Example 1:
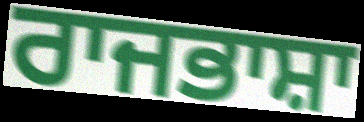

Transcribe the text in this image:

ਰਾਜਭਾਸ਼ਾ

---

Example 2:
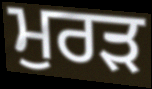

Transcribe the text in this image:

ਮੁਰੜ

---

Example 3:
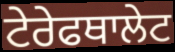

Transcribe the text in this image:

ਟੇਰੇਫਥਾਲੇਟ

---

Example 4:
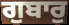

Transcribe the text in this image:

ਗੁਬਾਰੁ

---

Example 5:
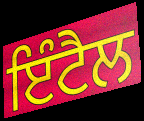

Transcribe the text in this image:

ਇੰਟੈਲ